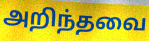
அறிந்தவை